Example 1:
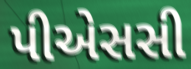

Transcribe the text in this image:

પીએસસી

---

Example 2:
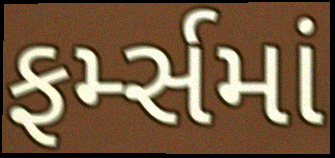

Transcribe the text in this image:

ફર્મ્સમાં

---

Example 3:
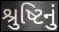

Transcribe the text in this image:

શ્રુષ્ટિનું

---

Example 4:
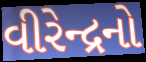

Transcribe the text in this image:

વીરેન્દ્રનો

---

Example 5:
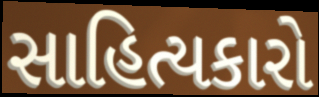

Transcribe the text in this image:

સાહિત્યકારો